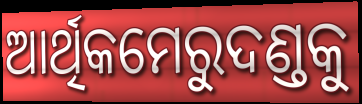
ଆର୍ଥିକମେରୁଦଣ୍ଡକୁ